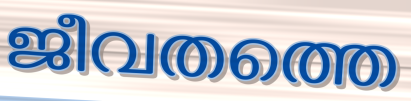
ജീവതത്തെ